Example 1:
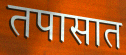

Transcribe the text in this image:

तपासात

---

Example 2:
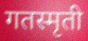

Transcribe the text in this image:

गतस्मृती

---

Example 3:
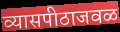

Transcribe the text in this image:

व्यासपीठाजवळ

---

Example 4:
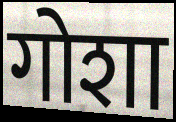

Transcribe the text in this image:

गोशा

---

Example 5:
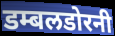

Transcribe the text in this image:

डम्बलडोरनी